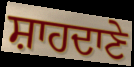
ਸ਼ਾਹਦਾਣੇ